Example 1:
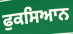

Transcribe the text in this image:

ਫੁਕਸਿਆਨ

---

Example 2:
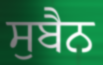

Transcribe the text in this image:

ਸੁਬੈਨ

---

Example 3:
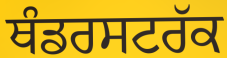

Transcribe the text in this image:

ਥੰਡਰਸਟਰੱਕ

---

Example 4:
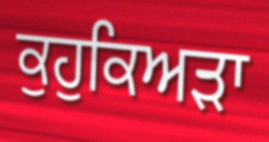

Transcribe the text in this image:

ਕੁਹੁਕਿਅੜਾ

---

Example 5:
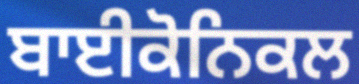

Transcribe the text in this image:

ਬਾਈਕੋਨਿਕਲ